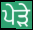
ਪੇੜੇ